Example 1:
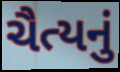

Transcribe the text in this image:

ચૈત્યનું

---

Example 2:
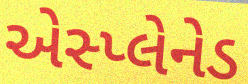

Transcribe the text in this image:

એસ્પ્લેનેડ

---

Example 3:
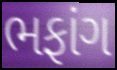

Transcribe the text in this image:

ભફાંગ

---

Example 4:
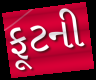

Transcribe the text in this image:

ફૂટની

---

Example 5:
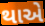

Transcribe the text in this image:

થાએ